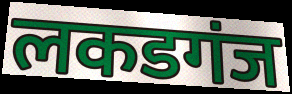
लकडगंज